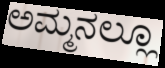
ಅಮ್ಮನಲ್ಲೂ